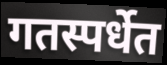
गतस्पर्धेत